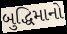
બુદ્ધિમાનો